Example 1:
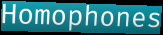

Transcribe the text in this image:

Homophones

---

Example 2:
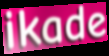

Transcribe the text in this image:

ikade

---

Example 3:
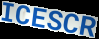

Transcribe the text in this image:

ICESCR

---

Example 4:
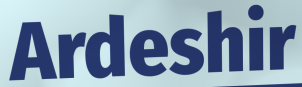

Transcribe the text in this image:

Ardeshir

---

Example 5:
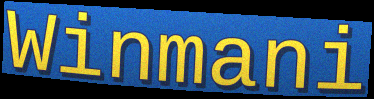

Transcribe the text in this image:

Winmani